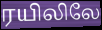
ரயிலிலே